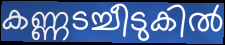
കണ്ണടച്ചീടുകിൽ